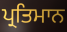
ਪ੍ਰਤਿਮਾਨ